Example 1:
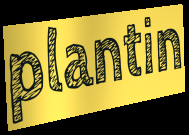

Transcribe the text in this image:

plantin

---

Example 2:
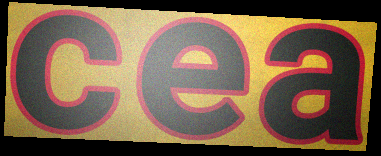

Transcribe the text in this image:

cea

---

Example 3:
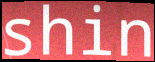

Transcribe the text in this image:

shin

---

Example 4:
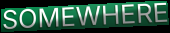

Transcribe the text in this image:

SOMEWHERE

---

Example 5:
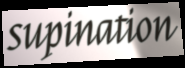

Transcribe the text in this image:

supination